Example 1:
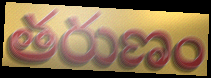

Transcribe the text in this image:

తరుణం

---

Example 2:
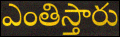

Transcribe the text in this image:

ఎంతిస్తారు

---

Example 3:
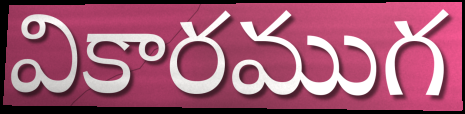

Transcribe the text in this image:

వికారముగ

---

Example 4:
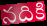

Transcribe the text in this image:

నదికి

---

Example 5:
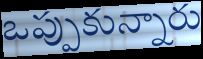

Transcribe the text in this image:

ఒప్పుకున్నారు